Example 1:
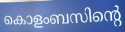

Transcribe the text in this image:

കൊളംബസിന്റെ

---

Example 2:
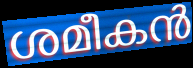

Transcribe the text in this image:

ശമീകൻ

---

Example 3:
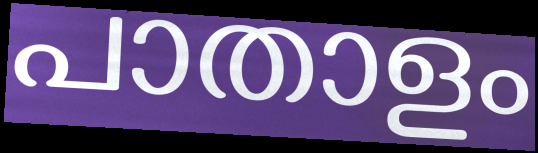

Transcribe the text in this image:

പാതാളം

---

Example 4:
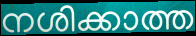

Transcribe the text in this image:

നശിക്കാത്ത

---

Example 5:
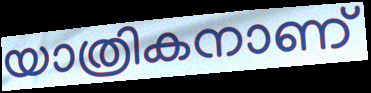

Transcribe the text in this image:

യാത്രികനാണ്